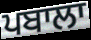
ਪਬਾਲਾ